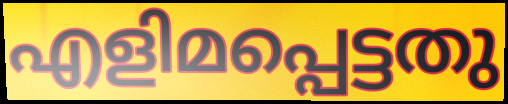
എളിമപ്പെട്ടതു